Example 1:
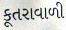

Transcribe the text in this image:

કૂતરાવાળી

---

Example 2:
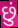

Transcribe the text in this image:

છું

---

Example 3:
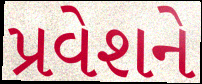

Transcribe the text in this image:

પ્રવેશને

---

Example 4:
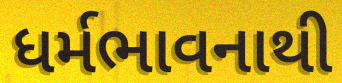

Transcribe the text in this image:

ધર્મભાવનાથી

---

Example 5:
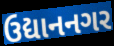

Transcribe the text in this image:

ઉદ્યાનનગર